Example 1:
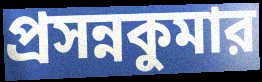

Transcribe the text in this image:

প্রসন্নকুমার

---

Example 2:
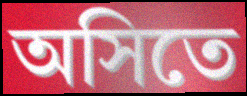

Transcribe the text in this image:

অসিতে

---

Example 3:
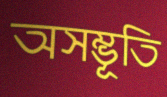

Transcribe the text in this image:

অসম্ভূতি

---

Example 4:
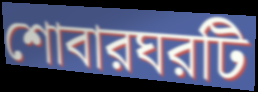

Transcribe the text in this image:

শোবারঘরটি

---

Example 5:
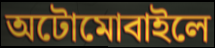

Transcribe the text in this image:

অটোমোবাইলে